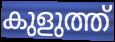
കുളുത്ത്